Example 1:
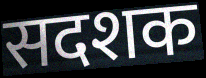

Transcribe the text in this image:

सदशक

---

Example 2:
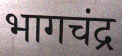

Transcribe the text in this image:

भागचंद्र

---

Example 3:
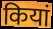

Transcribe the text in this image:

कियां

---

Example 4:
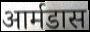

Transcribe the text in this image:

आर्मडास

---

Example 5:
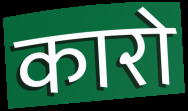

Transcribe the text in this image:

कारो